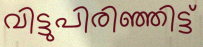
വിട്ടുപിരിഞ്ഞിട്ട്